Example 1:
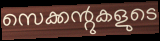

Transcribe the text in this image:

സെക്കന്റുകളുടെ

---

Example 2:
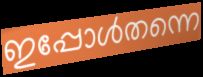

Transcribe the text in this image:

ഇപ്പോൾതന്നെ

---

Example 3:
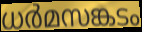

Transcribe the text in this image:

ധർമസങ്കടം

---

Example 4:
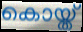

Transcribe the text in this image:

കൊയ്ത്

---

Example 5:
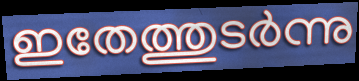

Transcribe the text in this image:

ഇതേത്തുടർന്നു